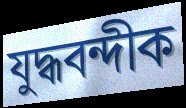
যুদ্ধবন্দীক